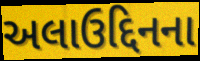
અલાઉદ્દિનના